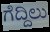
ಗೆದ್ದಿಲು